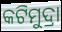
କଟିମୁଦ୍ରା